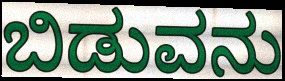
ಬಿಡುವನು